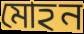
মোহন